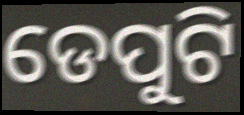
ଡେପୁଟି